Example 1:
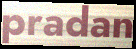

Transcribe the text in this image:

pradan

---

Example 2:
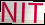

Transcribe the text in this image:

NIT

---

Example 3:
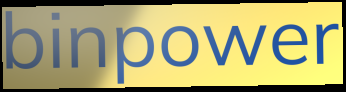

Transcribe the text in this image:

binpower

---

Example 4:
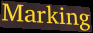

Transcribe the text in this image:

Marking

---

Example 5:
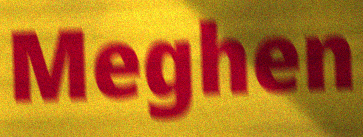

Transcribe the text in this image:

Meghen